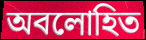
অবলোহিত